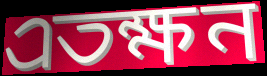
এতক্ষন